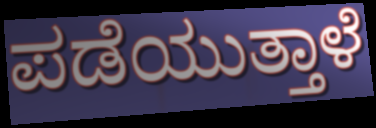
ಪಡೆಯುತ್ತಾಳೆ